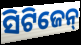
ସିଟିଜେନ୍